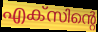
എക്‌സിന്റെ